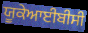
ਯੂਕੇਆਈਬੀਸੀ